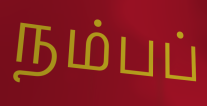
நம்பப்